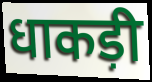
धाकड़ी